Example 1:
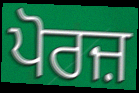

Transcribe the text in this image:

ਪੋਰਜ਼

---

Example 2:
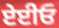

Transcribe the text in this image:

ਏਈਓ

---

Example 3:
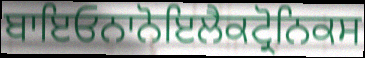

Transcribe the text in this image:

ਬਾਇਓਨਾਨੋਇਲੈਕਟ੍ਰੋਨਿਕਸ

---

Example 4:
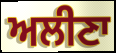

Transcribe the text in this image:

ਅਲੀਣਾ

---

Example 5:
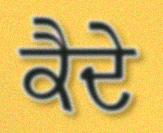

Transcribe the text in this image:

ਕੈਦੇ